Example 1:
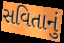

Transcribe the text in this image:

સવિતાનું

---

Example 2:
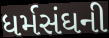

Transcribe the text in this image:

ધર્મસંઘની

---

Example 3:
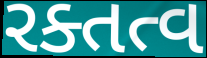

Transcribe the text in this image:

રક્તત્વ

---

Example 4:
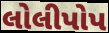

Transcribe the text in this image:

લોલીપોપ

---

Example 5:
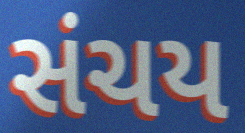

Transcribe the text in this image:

સંચય